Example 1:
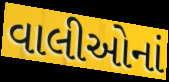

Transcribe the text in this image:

વાલીઓનાં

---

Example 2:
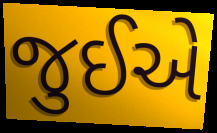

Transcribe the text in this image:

જુઈએ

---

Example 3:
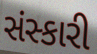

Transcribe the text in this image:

સંસ્કારી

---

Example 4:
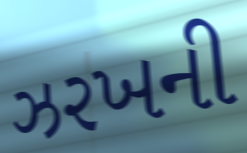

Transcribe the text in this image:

ઝરખની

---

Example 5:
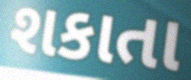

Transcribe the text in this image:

શકાતા